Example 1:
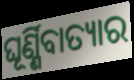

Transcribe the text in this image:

ଘୂର୍ଣ୍ଣିବାତ୍ୟାର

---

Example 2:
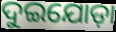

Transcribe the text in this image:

ଦୁଇଯୋଡ଼ା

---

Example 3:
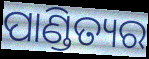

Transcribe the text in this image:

ପାଣ୍ଡିତ୍ୟର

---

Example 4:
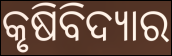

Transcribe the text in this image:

କୃଷିବିଦ୍ୟାର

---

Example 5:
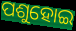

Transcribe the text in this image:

ପଶୁହୋଇ